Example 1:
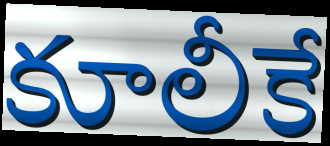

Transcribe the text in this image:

కూలీకే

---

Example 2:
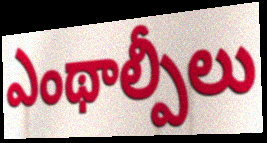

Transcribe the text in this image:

ఎంథాల్పీలు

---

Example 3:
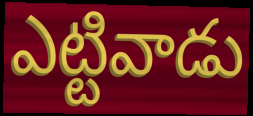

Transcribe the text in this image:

ఎట్టివాడు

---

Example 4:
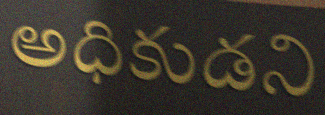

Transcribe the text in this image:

అధికుడని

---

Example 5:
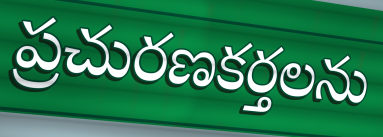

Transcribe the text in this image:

ప్రచురణకర్తలను